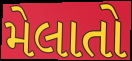
મેલાતો